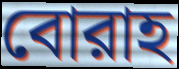
বোরাহ